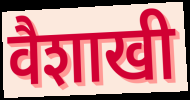
वैशाखी